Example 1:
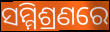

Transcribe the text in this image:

ସମ୍ମିଶ୍ରଣରେ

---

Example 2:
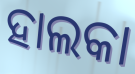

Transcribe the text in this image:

ହାଲକା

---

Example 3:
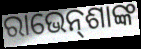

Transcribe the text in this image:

ରାଭେନ୍‌ଶାଙ୍କ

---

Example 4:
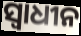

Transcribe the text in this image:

ସ୍ଵାଧୀନ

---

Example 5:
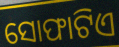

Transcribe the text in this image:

ସୋଫାଟିଏ